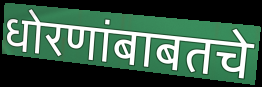
धोरणांबाबतचे